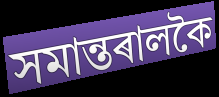
সমান্তৰালকৈ